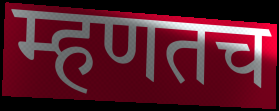
म्हणतच